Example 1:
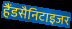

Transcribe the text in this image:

हैंडसैनिटाइजर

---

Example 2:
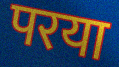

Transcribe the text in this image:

परया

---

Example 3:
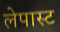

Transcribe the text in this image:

लेपास्ट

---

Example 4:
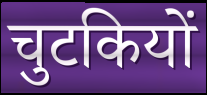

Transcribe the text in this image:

चुटकियों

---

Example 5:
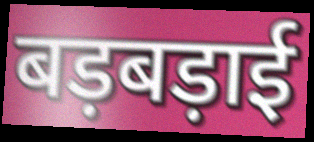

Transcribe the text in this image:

बड़बड़ाई